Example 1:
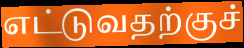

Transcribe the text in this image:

எட்டுவதற்குச்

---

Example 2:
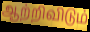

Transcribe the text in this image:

ஆற்றிவிடும்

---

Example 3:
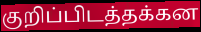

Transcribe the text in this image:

குறிப்பிடத்தக்கன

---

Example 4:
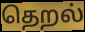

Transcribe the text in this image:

தெறல்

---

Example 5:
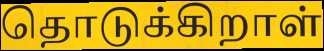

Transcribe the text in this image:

தொடுக்கிறாள்